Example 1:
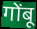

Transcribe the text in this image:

गोंबू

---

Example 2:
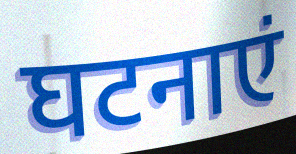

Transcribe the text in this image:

घटनाएं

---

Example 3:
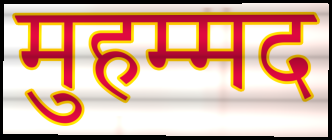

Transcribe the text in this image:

मुहम्मद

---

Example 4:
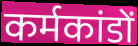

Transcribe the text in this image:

कर्मकांडों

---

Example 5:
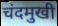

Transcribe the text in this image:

चंदमुखी